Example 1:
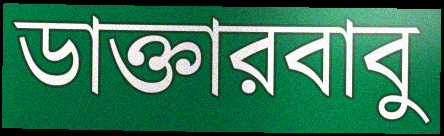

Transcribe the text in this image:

ডাক্তারবাবু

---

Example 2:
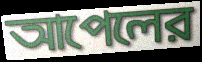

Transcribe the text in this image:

আপেলের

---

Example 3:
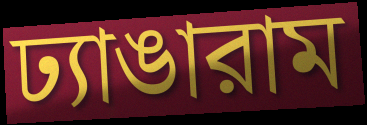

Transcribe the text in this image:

ঢ্যাঙারাম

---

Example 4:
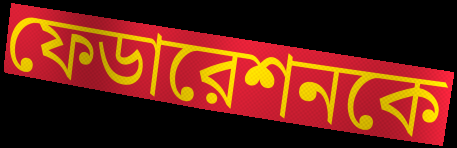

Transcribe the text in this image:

ফেডারেশনকে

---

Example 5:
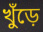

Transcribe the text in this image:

খুঁড়ে